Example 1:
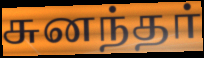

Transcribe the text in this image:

சுனந்தர்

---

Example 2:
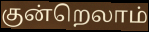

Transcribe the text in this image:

குன்றெலாம்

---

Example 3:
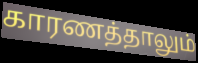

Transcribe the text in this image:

காரணத்தாலும்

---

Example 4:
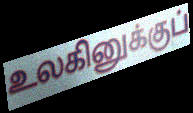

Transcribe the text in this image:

உலகினுக்குப்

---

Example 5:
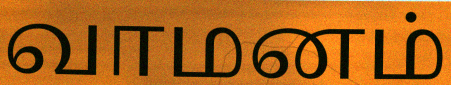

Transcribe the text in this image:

வாமனம்